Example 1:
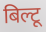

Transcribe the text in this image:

बिल्टू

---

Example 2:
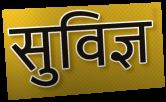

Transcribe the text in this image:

सुविज्ञ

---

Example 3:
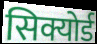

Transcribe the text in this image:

सिक्योर्ड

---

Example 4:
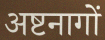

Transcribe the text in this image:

अष्टनागों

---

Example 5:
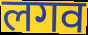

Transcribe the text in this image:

लगव